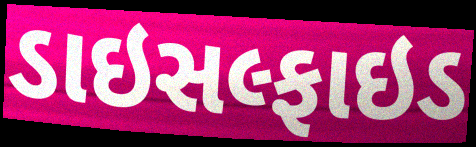
ડાઇસલ્ફાઇડ